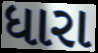
ધારા